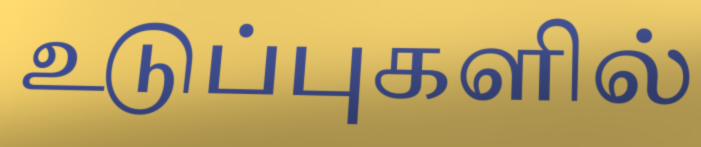
உடுப்புகளில்